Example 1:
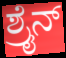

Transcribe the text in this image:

ಶ್ರೈನ್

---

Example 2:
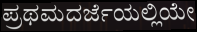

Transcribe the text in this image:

ಪ್ರಥಮದರ್ಜೆಯಲ್ಲಿಯೇ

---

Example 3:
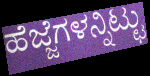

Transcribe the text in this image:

ಹೆಜ್ಜೆಗಳನ್ನಿಟ್ಟು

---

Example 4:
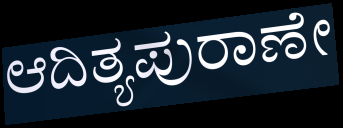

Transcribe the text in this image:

ಆದಿತ್ಯಪುರಾಣೇ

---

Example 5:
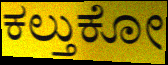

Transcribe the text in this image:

ಕಲ್ತುಕೋ